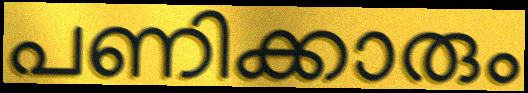
പണിക്കാരും